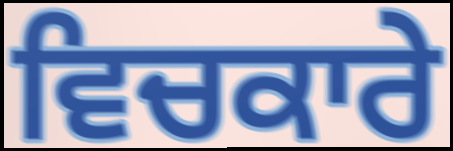
ਵਿਚਕਾਰੇ